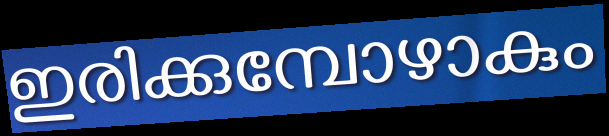
ഇരിക്കുമ്പോഴാകും